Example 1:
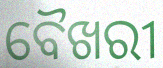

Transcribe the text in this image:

ବୈଖରୀ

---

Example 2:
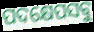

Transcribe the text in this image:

ପଦକ୍ଷେପସବୁ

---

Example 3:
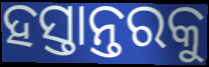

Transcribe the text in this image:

ହସ୍ତାନ୍ତରକୁ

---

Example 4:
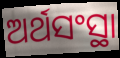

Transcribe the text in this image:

ଅର୍ଥସଂସ୍ଥା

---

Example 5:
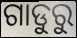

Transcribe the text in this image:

ଗାଡୁରୁ